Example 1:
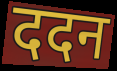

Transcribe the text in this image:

ददन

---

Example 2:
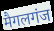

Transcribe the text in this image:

मैगलगंज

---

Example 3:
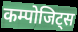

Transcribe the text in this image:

कम्पोजिट्स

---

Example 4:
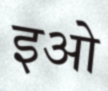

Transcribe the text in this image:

इओ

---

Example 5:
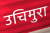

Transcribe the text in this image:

उचिमुरा